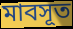
মাবসূত